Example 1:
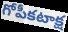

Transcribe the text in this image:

గోపీకటాక్ష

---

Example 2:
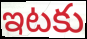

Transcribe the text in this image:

ఇటకు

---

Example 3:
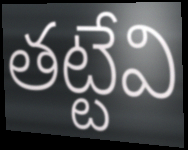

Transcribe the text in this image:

తట్టేవి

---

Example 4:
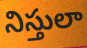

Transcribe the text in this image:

నిస్తులా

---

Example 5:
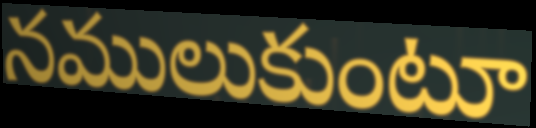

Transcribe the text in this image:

నములుకుంటూ